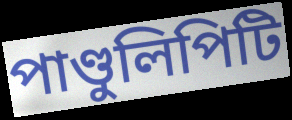
পাণ্ডুলিপিটি